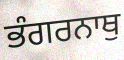
ਭੰਗਰਨਾਥੁ